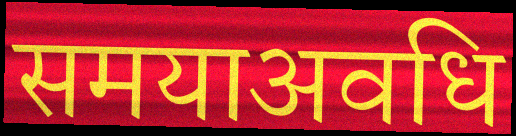
समयाअवधि